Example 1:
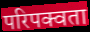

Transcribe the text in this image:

परिपक्वता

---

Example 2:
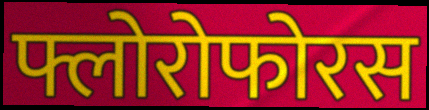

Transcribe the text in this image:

फ्लोरोफोरस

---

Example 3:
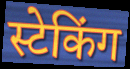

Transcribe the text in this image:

स्टेकिंग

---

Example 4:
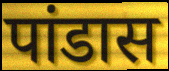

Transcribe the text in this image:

पांडास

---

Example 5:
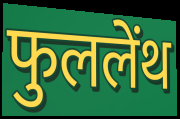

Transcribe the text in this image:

फुललेंथ